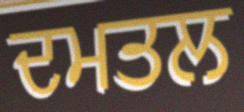
ਦਮਤਲ